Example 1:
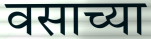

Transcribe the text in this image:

वसाच्या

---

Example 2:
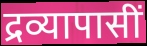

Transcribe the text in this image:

द्रव्यापासीं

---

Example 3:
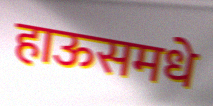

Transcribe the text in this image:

हाऊसमधे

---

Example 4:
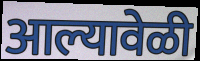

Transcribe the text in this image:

आल्यावेळी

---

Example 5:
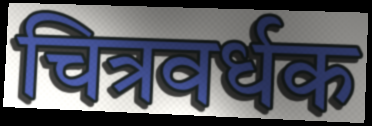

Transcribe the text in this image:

चित्रवर्धक